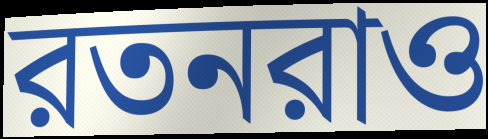
রতনরাও